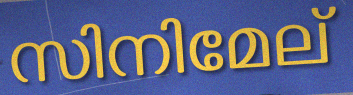
സിനിമേല്